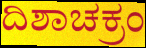
ದಿಶಾಚಕ್ರಂ